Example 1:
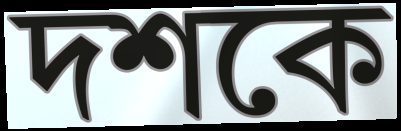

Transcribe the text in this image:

দশকে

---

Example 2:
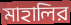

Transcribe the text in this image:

মাহালির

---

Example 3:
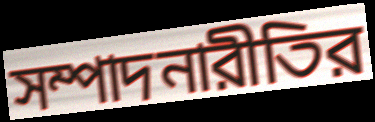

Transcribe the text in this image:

সম্পাদনারীতির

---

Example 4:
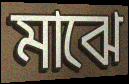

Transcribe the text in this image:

মাঝে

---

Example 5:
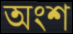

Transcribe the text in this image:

অংশ